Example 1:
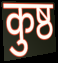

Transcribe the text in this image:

कुष्ठ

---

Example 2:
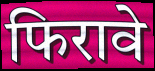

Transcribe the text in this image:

फिरावे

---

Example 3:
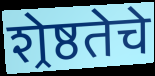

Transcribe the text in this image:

श्रेष्ठतेचे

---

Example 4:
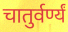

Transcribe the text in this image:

चातुर्वर्ण्यं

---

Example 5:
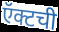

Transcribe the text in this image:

ऍक्टची